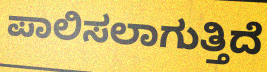
ಪಾಲಿಸಲಾಗುತ್ತಿದೆ